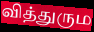
வித்துரும